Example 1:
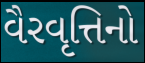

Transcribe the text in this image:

વૈરવૃત્તિનો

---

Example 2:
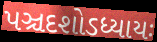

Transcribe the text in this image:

પઞ્ચદશોઽધ્યાયઃ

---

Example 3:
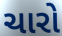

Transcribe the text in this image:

ચારો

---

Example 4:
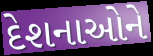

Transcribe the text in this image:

દેશનાઓને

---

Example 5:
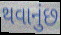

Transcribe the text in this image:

થવાનુંછ